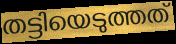
തട്ടിയെടുത്തത്